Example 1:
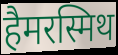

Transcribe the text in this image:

हैमरस्मिथ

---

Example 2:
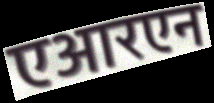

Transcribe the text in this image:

एआरएन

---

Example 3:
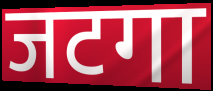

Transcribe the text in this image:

जटगा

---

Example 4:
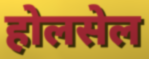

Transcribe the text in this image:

होलसेल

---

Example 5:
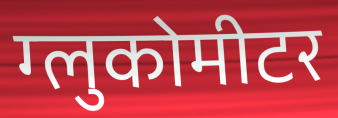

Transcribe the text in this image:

ग्लुकोमीटर